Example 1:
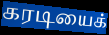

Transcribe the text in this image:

கரடியைக்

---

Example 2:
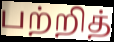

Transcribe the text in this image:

பற்றித்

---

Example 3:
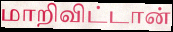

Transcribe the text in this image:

மாறிவிட்டான்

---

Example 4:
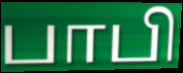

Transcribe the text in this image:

பாபி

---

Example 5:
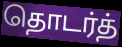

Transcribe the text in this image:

தொடர்த்